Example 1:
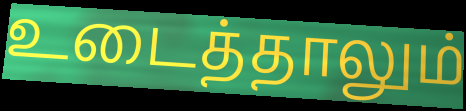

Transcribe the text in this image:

உடைத்தாலும்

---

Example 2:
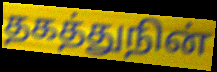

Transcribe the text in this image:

தகத்துநின்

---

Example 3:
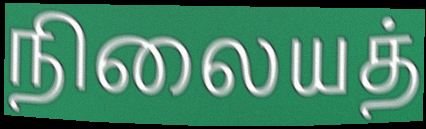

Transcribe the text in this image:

நிலையத்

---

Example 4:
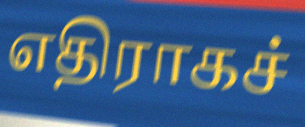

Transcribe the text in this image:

எதிராகச்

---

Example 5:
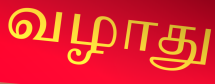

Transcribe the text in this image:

வழாது